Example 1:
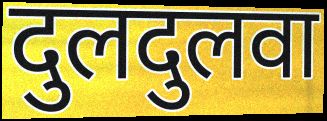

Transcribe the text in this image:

दुलदुलवा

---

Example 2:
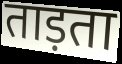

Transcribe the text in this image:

ताड़ता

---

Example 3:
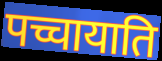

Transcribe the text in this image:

पच्चायाति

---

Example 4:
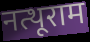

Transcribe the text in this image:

नत्थूराम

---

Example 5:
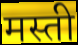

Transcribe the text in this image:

मस्ती